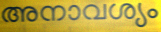
അനാവശ്യം